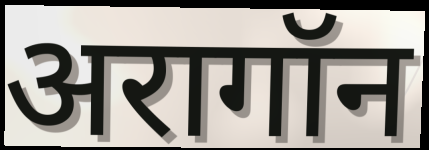
अरागॉन